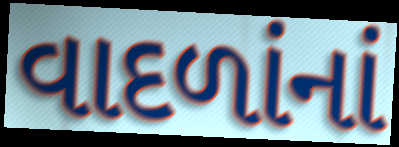
વાદળાંનાં